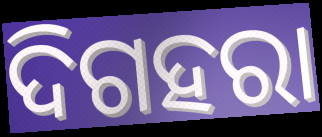
ଦିଗହରା